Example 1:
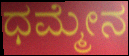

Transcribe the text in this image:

ಧಮ್ಮೇನ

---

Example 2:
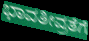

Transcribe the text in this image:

ಭಾವತೀವ್ರತೆಗೆ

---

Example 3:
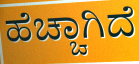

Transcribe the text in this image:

ಹೆಚ್ಚಾಗಿದೆ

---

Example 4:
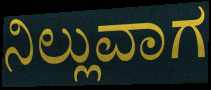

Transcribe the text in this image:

ನಿಲ್ಲುವಾಗ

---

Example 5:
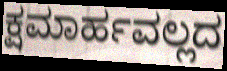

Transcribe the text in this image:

ಕ್ಷಮಾರ್ಹವಲ್ಲದ